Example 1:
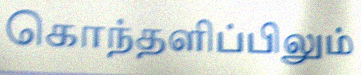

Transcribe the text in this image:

கொந்தளிப்பிலும்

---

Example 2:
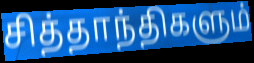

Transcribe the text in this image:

சித்தாந்திகளும்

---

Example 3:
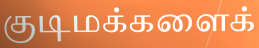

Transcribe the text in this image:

குடிமக்களைக்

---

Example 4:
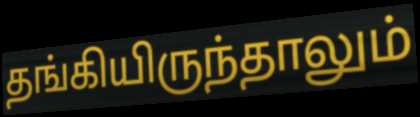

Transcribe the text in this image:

தங்கியிருந்தாலும்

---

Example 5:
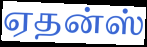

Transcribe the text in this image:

ஏதன்ஸ்